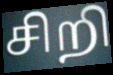
சிறி